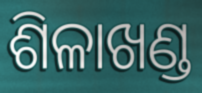
ଶିଳାଖଣ୍ଡ